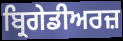
ਬ੍ਰਿਗੇਡੀਅਰਜ਼